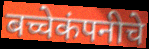
बच्चेकंपनीचे